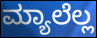
ಮ್ಯಾಲೆಲ್ಲ